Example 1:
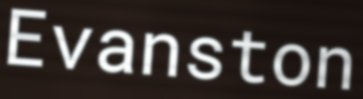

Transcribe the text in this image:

Evanston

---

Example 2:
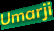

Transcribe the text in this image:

Umarji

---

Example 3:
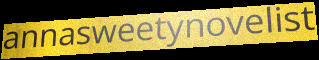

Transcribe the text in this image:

annasweetynovelist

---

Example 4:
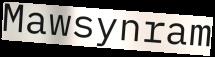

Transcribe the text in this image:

Mawsynram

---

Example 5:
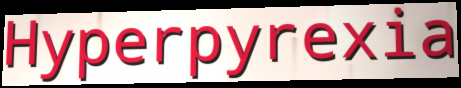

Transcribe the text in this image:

Hyperpyrexia